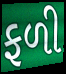
ફળી